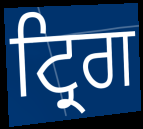
ਟ੍ਰਿਗ